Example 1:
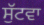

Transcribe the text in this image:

ਸੁੱਟਵਾ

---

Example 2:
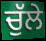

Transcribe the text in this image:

ਚੁੱਲੇ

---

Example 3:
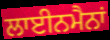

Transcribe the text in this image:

ਲਾਈਨਮੈਨਾਂ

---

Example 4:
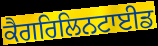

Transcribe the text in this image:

ਕੈਗਰਿਲਿਨਟਾਈਡ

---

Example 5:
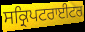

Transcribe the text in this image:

ਸਕ੍ਰਿਪਟਰਾਈਟਰ